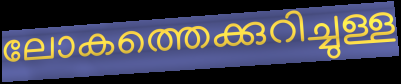
ലോകത്തെക്കുറിച്ചുള്ള